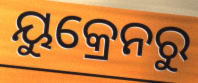
ୟୁକ୍ରେନରୁ